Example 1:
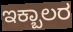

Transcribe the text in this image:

ಇಕ್ಬಾಲರ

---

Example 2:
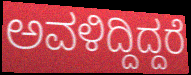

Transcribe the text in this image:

ಅವಳಿದ್ದಿದ್ದರೆ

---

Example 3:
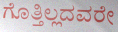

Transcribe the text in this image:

ಗೊತ್ತಿಲ್ಲದವರೇ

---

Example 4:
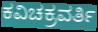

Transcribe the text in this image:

ಕವಿಚಕ್ರವರ್ತಿ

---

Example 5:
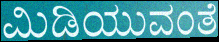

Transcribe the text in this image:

ಮಿಡಿಯುವಂತೆ